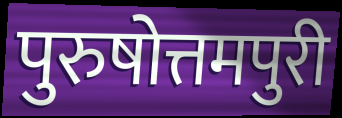
पुरुषोत्तमपुरी